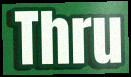
Thru